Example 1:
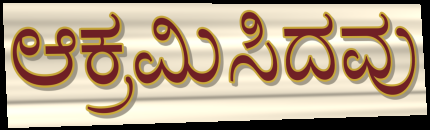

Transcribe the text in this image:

ಆಕ್ರಮಿಸಿದವು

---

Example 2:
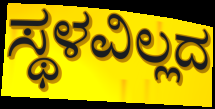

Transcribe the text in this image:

ಸ್ಥಳವಿಲ್ಲದ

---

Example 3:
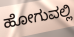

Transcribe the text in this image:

ಹೋಗುವಲ್ಲಿ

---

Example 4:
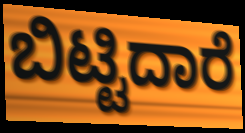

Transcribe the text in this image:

ಬಿಟ್ಟಿದಾರೆ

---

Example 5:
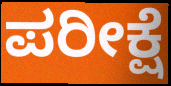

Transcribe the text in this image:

ಪರೀಕ್ಷೆ